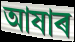
আষাৰ